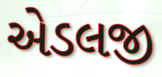
એડલજી